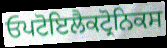
ਓਪਟੋਇਲੈਕਟ੍ਰੋਨਿਕਸ